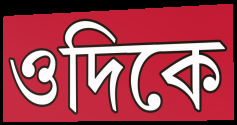
ওদিকে